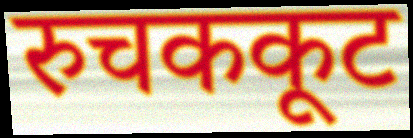
रुचककूट